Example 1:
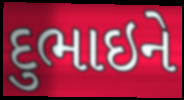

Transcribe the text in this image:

દુભાઇને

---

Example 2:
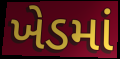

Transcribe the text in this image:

ખેડમાં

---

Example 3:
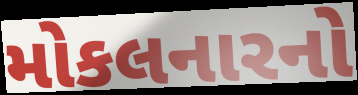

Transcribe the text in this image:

મોકલનારનો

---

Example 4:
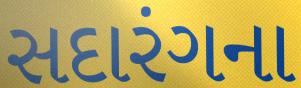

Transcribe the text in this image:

સદારંગના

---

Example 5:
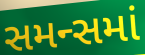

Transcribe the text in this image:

સમન્સમાં